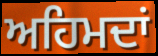
ਅਹਿਮਦਾਂ